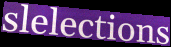
slelections